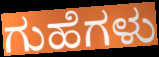
ಗುಹೆಗಳು